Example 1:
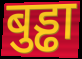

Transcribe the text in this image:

बुड्ढा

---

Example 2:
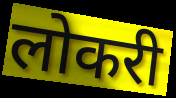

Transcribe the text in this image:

लोकरी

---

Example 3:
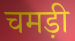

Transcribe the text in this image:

चमड़ी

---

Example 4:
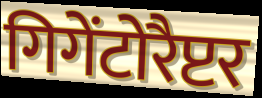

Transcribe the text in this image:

गिगेंटोरैप्टर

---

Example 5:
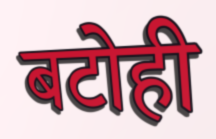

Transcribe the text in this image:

बटोही